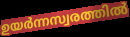
ഉയർന്നസ്വരത്തിൽ